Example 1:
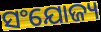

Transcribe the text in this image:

ସଂଯୋଜ୍ୟ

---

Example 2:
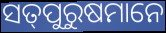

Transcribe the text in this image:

ସତ୍‌ପୁରୁଷମାନେ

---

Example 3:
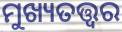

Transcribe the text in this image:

ମୁଖ୍ୟତତ୍ତ୍ୱର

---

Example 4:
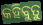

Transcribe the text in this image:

କହିବୁତୁ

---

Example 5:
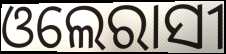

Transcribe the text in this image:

ଓଲେରାସୀ